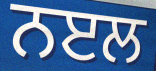
ਨੲਲ